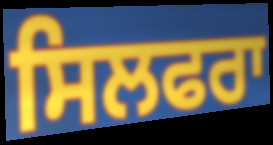
ਸਿਲਫਰਾ